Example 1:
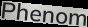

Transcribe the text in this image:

Phenom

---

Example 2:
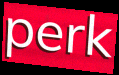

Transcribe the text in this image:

perk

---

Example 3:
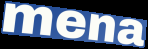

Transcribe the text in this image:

mena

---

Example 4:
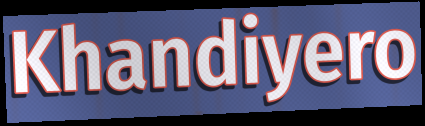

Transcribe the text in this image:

Khandiyero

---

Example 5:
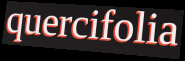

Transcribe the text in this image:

quercifolia